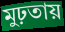
মুঢ়তায়